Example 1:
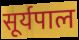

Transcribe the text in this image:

सूर्यपाल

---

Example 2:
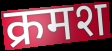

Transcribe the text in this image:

क्रमश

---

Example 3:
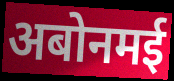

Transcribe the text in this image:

अबोनमई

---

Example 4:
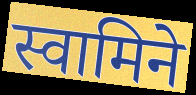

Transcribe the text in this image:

स्वामिने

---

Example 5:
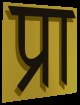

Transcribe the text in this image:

प्रा